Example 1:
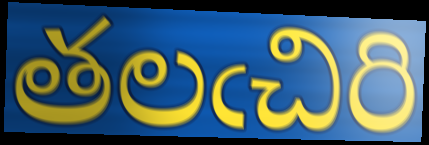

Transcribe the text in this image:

తలఁచిరి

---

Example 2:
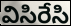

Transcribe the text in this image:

విసిరేసి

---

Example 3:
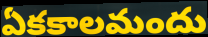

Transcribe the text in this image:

ఏకకాలమందు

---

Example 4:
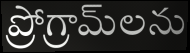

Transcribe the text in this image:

ప్రోగ్రామ్‌లను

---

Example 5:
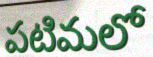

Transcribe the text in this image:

పటిమలో